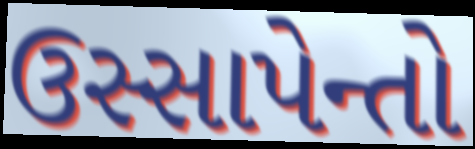
ઉસ્સાપેન્તો